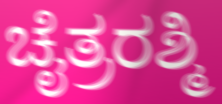
ಚೈತ್ರರಶ್ಮಿ